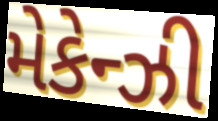
મેકેન્ઝી